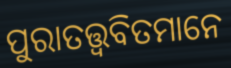
ପୁରାତତ୍ତ୍ୱବିତମାନେ